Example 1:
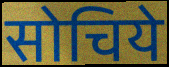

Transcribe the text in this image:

सोचिये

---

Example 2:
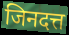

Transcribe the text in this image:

जिनदत्त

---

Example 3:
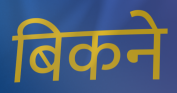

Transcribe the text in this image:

बिकने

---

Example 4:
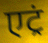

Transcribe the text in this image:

एट्रं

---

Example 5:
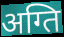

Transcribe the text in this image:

अग्ति